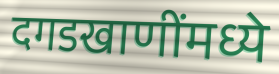
दगडखाणींमध्ये